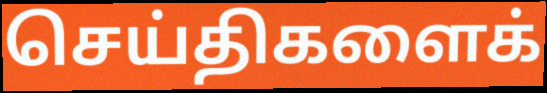
செய்திகளைக்